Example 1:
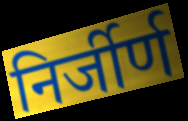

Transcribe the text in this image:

निर्जीर्ण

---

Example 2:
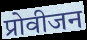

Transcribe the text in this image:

प्रोवीजन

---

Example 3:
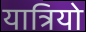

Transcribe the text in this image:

यात्रियो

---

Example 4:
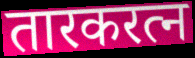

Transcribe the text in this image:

तारकरत्न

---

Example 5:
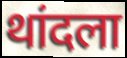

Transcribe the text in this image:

थांदला